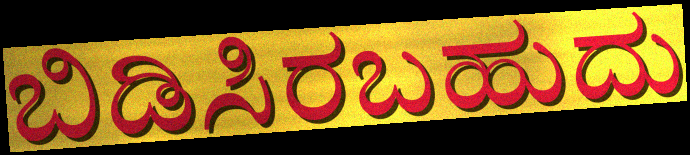
ಬಿಡಿಸಿರಬಹುದು